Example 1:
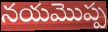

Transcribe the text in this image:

నయమొప్ప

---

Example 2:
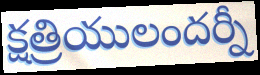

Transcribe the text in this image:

క్షత్రియులందర్నీ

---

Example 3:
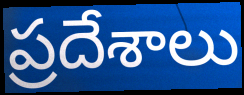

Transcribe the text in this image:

ప్రదేశాలు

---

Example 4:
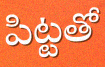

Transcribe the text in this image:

పిట్టతో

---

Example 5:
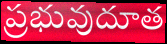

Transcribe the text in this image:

ప్రభువుదూత